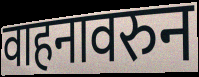
वाहनावरुन